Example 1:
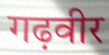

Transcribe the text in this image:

गढ़वीर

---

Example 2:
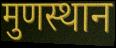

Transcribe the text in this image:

मुणस्थान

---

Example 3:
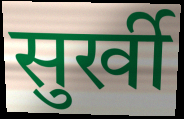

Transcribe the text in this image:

सुर्खी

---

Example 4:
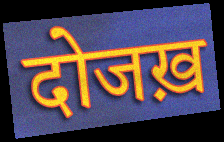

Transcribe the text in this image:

दोजख़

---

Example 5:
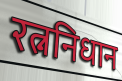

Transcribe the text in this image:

रत्ननिधान